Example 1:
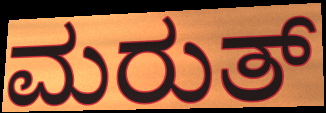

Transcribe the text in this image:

ಮರುತ್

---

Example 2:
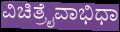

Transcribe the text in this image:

ವಿಚಿತ್ರೈವಾಭಿಧಾ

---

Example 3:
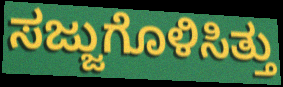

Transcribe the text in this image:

ಸಜ್ಜುಗೊಳಿಸಿತ್ತು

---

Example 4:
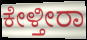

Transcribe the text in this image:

ಕೇಳ್ತೀರಾ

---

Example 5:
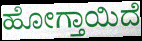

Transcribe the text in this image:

ಹೋಗ್ತಾಯಿದೆ